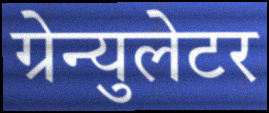
ग्रेन्युलेटर